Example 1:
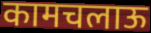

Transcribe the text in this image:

कामचलाऊ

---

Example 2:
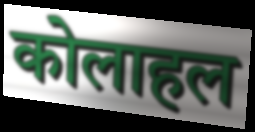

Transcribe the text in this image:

कोलाहल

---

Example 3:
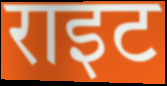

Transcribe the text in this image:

राइट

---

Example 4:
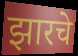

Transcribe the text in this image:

झारचे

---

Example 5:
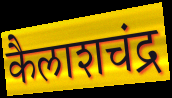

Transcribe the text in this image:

कैलाशचंद्र